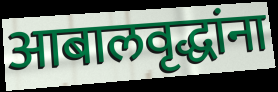
आबालवृद्धांना